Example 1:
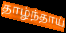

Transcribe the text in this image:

தாழ்ந்தாய்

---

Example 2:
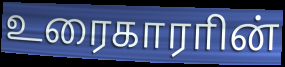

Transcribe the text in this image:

உரைகாரரின்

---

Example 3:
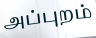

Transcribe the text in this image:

அப்புறம்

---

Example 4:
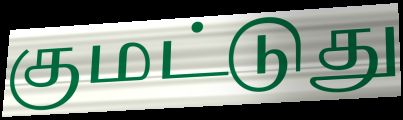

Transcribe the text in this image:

குமட்டுது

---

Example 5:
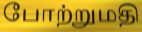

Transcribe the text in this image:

போற்றுமதி